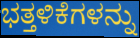
ಭತ್ತಳಿಕೆಗಳನ್ನು